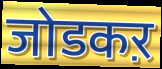
जोडकऱ